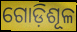
ଗୋଡ଼ିଶୂଳ